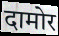
दामोर